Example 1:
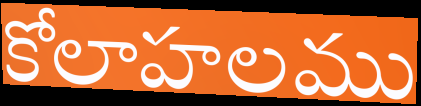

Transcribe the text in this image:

కోలాహలము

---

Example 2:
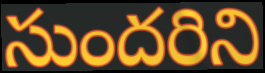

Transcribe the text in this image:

సుందరిని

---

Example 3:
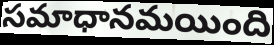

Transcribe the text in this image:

సమాధానమయింది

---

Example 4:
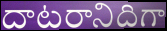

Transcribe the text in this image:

దాటరానిదిగా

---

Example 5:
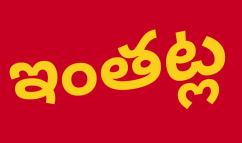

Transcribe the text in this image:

ఇంతట్ల